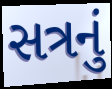
સત્રનું